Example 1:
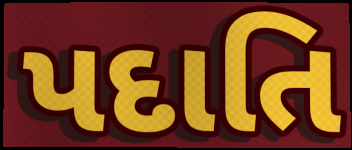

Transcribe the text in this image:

પદાતિ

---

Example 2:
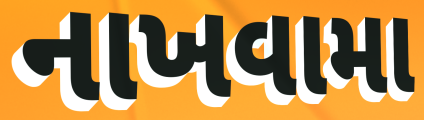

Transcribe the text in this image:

નાખવામા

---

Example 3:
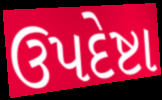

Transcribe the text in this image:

ઉપદેષ્ટા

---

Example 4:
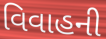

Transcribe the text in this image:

વિવાહની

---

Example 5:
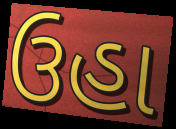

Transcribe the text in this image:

ઉહા